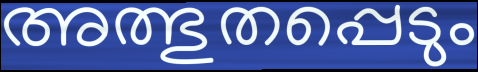
അത്ഭുതപ്പെടും